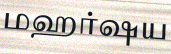
மஹர்ஷய